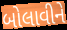
બોલાવીને